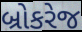
બ્રોકરેજ